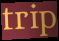
trip